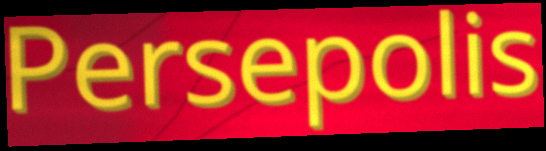
Persepolis